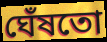
ঘেঁষতো